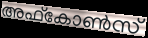
അഫ്കോൺസ്